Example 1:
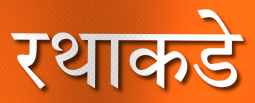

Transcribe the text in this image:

रथाकडे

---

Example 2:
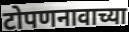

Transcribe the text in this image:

टोपणनावाच्या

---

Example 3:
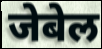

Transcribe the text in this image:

जेबेल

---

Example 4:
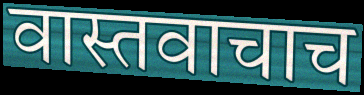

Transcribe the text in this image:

वास्तवाचाच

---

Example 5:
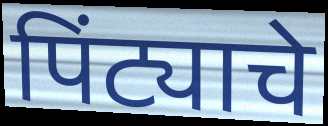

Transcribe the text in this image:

पिंट्याचे